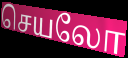
செயலோ